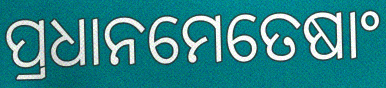
ପ୍ରଧାନମେତେଷାଂ